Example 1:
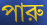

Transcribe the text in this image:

পারু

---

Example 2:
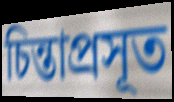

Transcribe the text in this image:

চিন্তাপ্রসূত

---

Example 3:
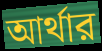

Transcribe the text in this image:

আর্থার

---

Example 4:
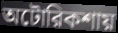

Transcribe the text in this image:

অটোরিকশায়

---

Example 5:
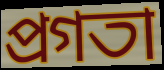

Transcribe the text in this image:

প্রগতা